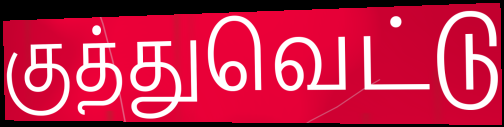
குத்துவெட்டு